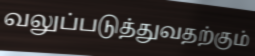
வலுப்படுத்துவதற்கும்